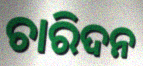
ଚାରିଦନ